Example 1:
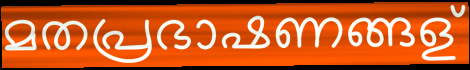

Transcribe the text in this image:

മതപ്രഭാഷണങ്ങള്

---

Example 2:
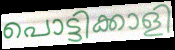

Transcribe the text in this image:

പൊട്ടിക്കാളി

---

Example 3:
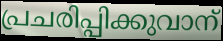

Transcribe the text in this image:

പ്രചരിപ്പിക്കുവാന്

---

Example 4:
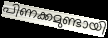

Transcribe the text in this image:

പിണക്കമുണ്ടായി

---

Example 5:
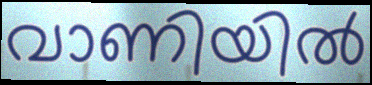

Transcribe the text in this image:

വാണിയിൽ